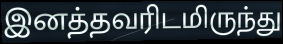
இனத்தவரிடமிருந்து